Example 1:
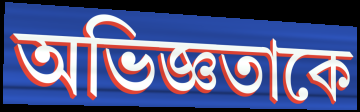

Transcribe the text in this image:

অভিজ্ঞতাকে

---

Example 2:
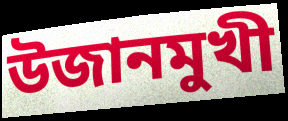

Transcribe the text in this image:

উজানমুখী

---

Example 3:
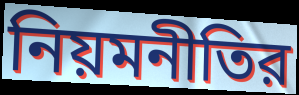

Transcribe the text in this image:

নিয়মনীতির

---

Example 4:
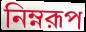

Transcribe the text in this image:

নিম্নরূপ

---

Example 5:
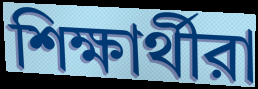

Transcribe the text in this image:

শিক্ষার্থীরা